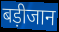
बड़ीजान